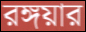
রঙ্গয়ার